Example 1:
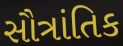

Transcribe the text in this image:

સૌત્રાંતિક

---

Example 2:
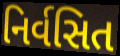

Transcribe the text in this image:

નિર્વસિત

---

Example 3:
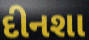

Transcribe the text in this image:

દીનશા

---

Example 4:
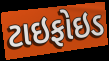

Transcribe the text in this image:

ટાઇફોઇડ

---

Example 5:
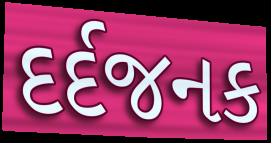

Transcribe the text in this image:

દર્દજનક